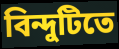
বিন্দুটিতে